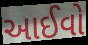
આઈવો